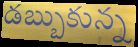
డబ్బుకున్న